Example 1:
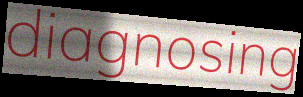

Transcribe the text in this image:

diagnosing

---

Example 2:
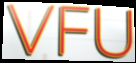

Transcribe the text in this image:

VFU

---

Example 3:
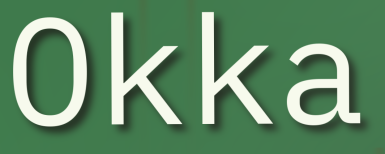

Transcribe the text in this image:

Okka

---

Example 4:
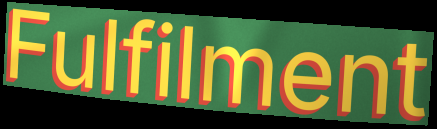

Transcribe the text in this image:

Fulfilment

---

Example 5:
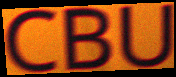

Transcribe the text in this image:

CBU